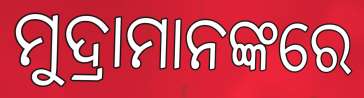
ମୁଦ୍ରାମାନଙ୍କରେ